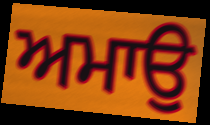
ਅਮਾਉ